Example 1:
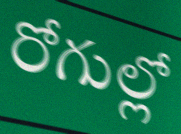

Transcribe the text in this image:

రోగుల్లో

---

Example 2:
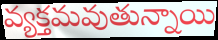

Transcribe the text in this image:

వ్యక్తమవుతున్నాయి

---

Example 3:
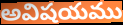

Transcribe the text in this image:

అవిషయము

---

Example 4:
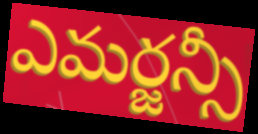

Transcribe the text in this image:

ఎమర్జన్సీ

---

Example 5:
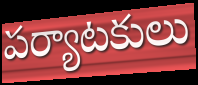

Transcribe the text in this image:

పర్యాటకులు